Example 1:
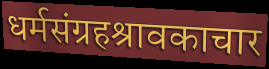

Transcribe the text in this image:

धर्मसंग्रहश्रावकाचार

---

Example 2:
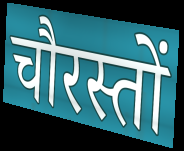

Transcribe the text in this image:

चौरस्तों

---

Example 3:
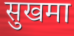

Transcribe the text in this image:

सुखमा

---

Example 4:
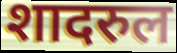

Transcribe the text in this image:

शादरुल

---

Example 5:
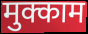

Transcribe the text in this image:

मुक्काम